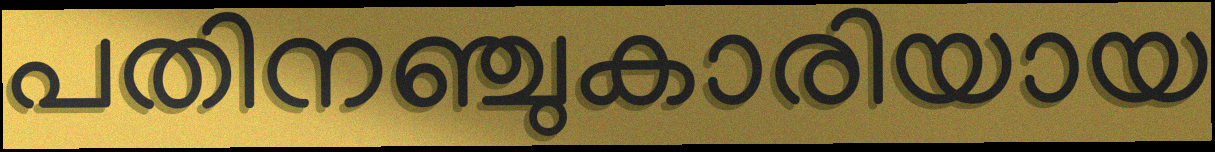
പതിനഞ്ചുകാരിയായ